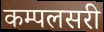
कम्पलसरी